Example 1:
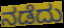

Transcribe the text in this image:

ನಡೆದು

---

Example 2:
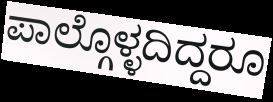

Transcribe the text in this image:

ಪಾಲ್ಗೊಳ್ಳದಿದ್ದರೂ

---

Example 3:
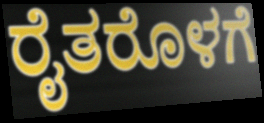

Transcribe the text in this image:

ರೈತರೊಳಗೆ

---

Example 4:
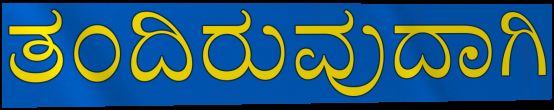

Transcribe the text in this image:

ತಂದಿರುವುದಾಗಿ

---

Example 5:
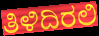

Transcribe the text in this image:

ತಿಳಿದಿರಲಿ